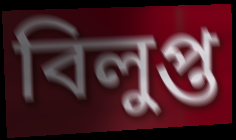
বিলুপ্ত